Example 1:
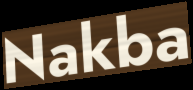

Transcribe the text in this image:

Nakba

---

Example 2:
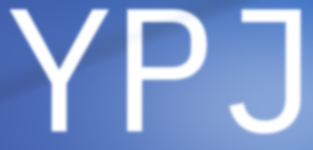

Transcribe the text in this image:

YPJ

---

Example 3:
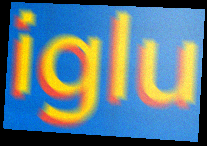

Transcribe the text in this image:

iglu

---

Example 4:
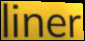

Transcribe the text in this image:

liner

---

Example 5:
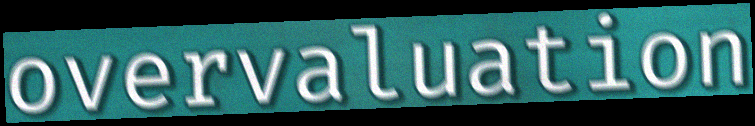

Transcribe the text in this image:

overvaluation